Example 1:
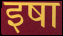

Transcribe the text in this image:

इषा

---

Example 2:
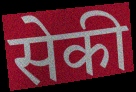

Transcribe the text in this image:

सेकी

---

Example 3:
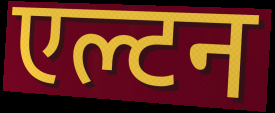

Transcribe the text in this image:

एल्टन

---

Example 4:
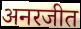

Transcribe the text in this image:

अनरजीत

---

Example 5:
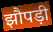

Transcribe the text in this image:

झौपड़ी